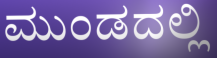
ಮುಂಡದಲ್ಲಿ